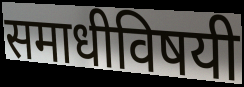
समाधीविषयी